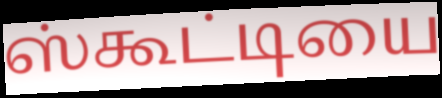
ஸ்கூட்டியை